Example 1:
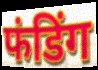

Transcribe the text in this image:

फंडिंग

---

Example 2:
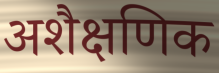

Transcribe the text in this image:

अशैक्षणिक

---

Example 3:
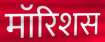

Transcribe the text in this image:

मॉरिशस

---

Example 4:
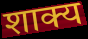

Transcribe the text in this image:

शाक्य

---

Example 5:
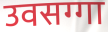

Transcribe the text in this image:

उवसग्गा